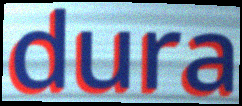
dura